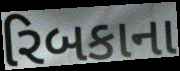
રિબકાના